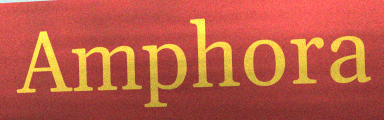
Amphora